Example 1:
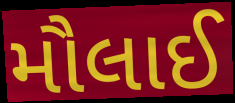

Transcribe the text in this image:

મૌલાઈ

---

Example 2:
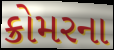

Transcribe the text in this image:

ક્રોમરના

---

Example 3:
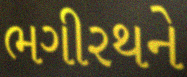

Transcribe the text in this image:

ભગીરથને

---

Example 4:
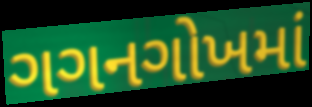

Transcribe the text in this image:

ગગનગોખમાં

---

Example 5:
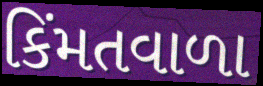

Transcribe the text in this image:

કિંમતવાળા